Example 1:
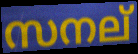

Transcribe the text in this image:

സനല്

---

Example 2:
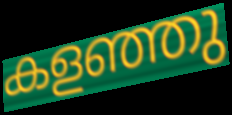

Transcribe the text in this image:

കളഞ്ഞു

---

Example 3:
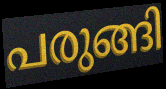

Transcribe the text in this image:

പരുങ്ങി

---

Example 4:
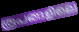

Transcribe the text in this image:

രൂപങ്ങളിലെ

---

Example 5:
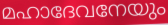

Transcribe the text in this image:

മഹാദേവനേയും